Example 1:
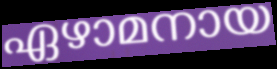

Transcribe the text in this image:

ഏഴാമനായ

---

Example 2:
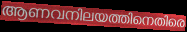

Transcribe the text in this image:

ആണവനിലയത്തിനെതിരെ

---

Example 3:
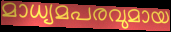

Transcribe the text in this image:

മാധ്യമപരവുമായ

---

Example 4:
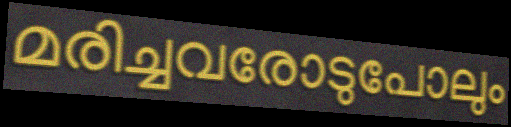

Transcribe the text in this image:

മരിച്ചവരോടുപോലും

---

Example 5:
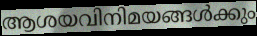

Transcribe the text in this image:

ആശയവിനിമയങ്ങൾക്കും